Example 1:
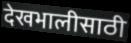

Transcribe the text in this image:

देखभालीसाठी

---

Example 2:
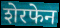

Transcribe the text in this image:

शेरफेन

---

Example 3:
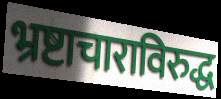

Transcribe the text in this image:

भ्रष्टाचाराविरुद्ध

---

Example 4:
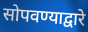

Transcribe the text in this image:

सोपवण्याद्वारे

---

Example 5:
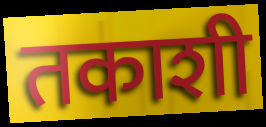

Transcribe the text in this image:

तकाशी